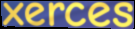
xerces